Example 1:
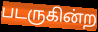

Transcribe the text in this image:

படருகின்ற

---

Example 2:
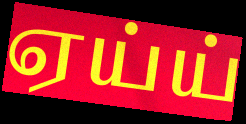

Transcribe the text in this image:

ஏய்ய்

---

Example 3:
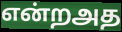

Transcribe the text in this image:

என்றஅத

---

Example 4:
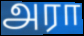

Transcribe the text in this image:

அரா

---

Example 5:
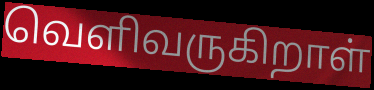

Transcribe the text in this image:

வெளிவருகிறாள்